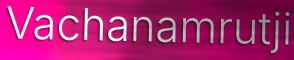
Vachanamrutji